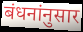
बंधनांनुसार